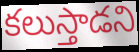
కలుస్తాడని